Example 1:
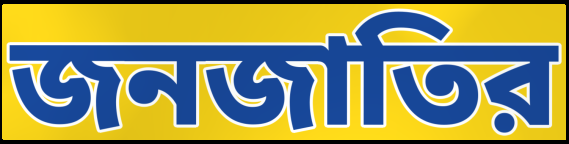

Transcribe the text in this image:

জনজাতির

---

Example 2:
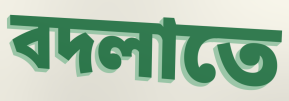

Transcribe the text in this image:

বদলাতে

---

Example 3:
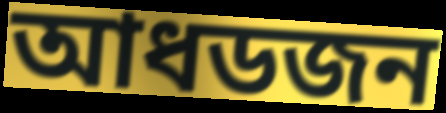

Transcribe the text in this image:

আধডজন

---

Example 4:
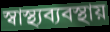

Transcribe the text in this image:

স্বাস্থ্যব্যবস্থায়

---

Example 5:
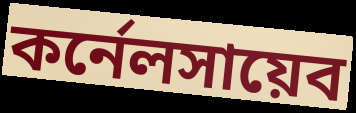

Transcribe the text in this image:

কর্নেলসায়েব